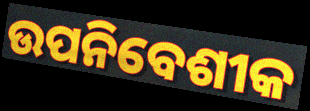
ଉପନିବେଶୀକ